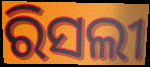
ରିସଲୀ